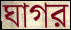
ঘাগর